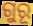
ଗୁରୂ